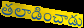
తలాడించాడు